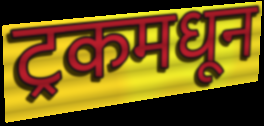
ट्रकमधून